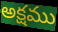
అక్షము